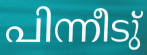
പിന്നീടു്